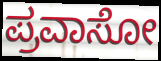
ಪ್ರವಾಸೋ